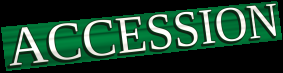
ACCESSION